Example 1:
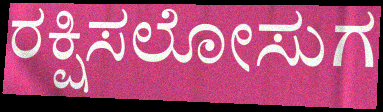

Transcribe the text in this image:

ರಕ್ಷಿಸಲೋಸುಗ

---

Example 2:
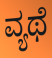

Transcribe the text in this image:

ವ್ಯಥೆ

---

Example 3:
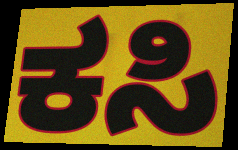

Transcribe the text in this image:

ಕಸಿ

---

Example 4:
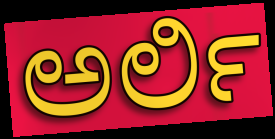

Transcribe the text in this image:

ಅರ್ಲಿ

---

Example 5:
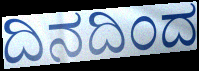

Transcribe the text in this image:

ದಿನದಿಂದ